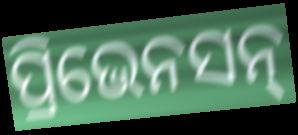
ପ୍ରିଭେନସନ୍